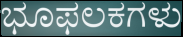
ಭೂಫಲಕಗಳು